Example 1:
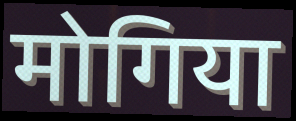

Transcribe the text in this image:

मोगिया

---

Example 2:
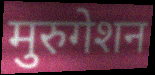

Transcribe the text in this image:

मुरुगेशन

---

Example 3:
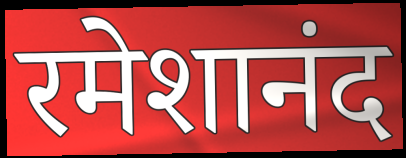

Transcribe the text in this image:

रमेशानंद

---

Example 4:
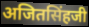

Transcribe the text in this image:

अजितसिंहजी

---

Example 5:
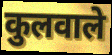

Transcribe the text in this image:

कुलवाले